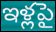
ఇళ్లపై